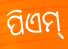
ପିଏମ୍